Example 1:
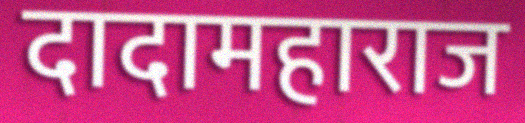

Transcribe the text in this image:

दादामहाराज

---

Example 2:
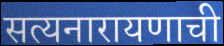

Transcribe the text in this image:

सत्यनारायणाची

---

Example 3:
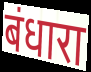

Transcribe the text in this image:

बंधारा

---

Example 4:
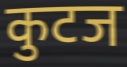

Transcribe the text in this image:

कुटज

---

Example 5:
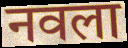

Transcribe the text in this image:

नवला